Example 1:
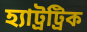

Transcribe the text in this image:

হ্যাট্রট্রিক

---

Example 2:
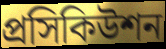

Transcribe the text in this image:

প্রসিকিউশন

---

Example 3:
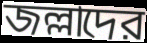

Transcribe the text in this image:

জল্লাদের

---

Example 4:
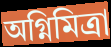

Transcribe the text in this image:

অগ্নিমিত্রা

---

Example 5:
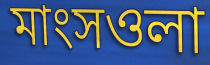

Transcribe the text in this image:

মাংসওলা